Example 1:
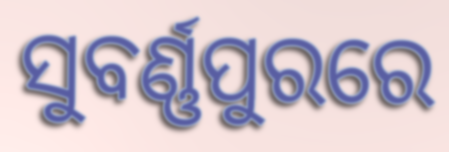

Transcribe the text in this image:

ସୁବର୍ଣ୍ଣପୁରରେ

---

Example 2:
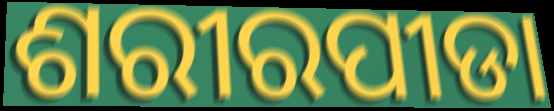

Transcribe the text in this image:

ଶରୀରପୀଡା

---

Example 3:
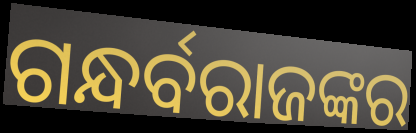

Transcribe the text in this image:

ଗନ୍ଧର୍ବରାଜଙ୍କର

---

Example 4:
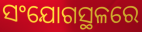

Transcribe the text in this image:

ସଂଯୋଗସ୍ଥଳରେ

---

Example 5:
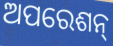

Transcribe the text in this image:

ଅପରେଶନ୍